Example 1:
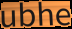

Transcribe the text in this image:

ubhe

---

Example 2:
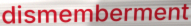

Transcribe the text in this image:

dismemberment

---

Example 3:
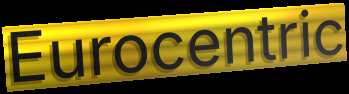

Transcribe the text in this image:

Eurocentric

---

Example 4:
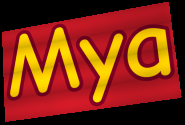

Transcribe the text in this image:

Mya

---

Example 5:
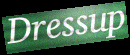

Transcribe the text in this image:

Dressup